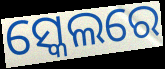
ସ୍କେଲରେ